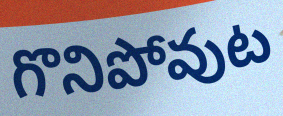
గొనిపోవుట